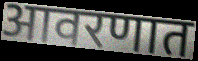
आवरणात